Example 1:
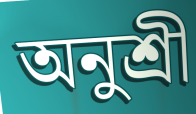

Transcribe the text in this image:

অনুশ্ৰী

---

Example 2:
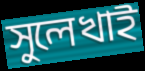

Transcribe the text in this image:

সুলেখাই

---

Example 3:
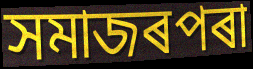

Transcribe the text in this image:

সমাজৰপৰা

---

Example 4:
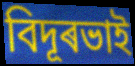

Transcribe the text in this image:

বিদূৰভাই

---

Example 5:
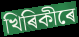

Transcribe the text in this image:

খিৰিকীৰে